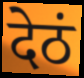
देठं